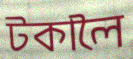
টকালৈ